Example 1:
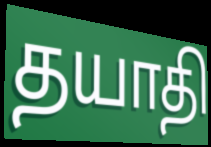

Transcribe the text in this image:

தயாதி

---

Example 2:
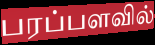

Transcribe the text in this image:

பரப்பளவில்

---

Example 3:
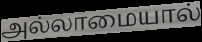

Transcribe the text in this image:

அல்லாமையால்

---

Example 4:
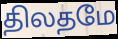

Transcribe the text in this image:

திலதமே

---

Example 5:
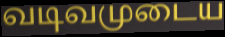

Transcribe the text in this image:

வடிவமுடைய